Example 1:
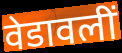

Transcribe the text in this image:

वेडावलीं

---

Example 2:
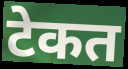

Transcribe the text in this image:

टेकत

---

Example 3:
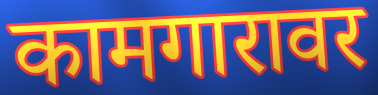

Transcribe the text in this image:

कामगारावर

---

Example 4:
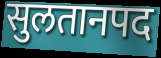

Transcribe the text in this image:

सुलतानपद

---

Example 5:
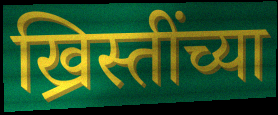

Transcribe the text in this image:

ख्रिस्तींच्या